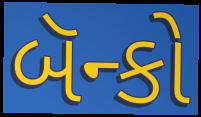
બૅન્કો